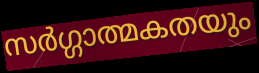
സർഗ്ഗാത്മകതയും